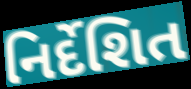
નિર્દેશિત